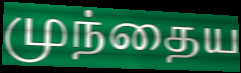
முந்தைய